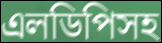
এলডিপিসহ